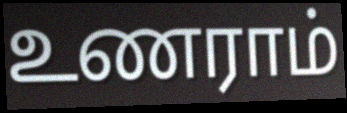
உணராம்